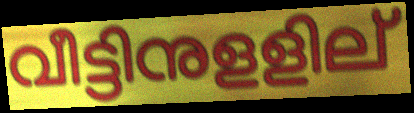
വീട്ടിനുളളില്